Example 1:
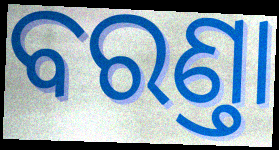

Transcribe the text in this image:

ବରଣ୍ତା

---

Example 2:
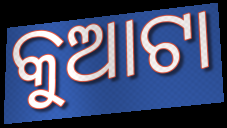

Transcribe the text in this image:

କୁଆଟା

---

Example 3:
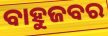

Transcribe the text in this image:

ବାହୁଜବର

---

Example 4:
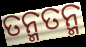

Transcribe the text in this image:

ତନ୍ମତନ୍ମ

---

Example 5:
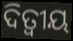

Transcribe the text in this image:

ଦିତ୍ୱୀୟ